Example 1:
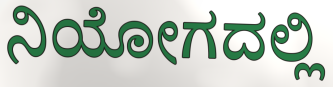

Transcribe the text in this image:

ನಿಯೋಗದಲ್ಲಿ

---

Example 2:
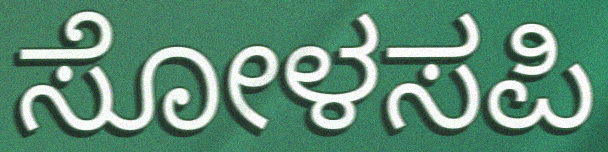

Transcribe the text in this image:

ಸೋಳಸಪಿ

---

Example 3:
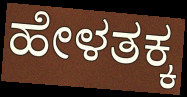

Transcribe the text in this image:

ಹೇಳತಕ್ಕ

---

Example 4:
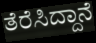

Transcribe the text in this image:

ತೆರೆಸಿದ್ದಾನೆ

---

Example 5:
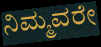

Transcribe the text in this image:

ನಿಮ್ಮವರೇ